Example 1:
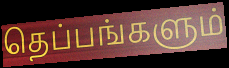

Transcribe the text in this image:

தெப்பங்களும்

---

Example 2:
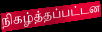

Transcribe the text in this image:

நிகழ்த்தப்பட்டன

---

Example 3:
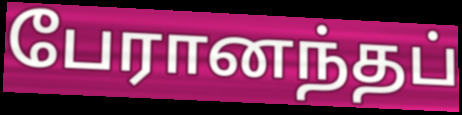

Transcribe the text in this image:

பேரானந்தப்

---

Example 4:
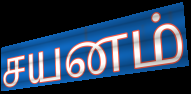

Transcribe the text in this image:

சயனம்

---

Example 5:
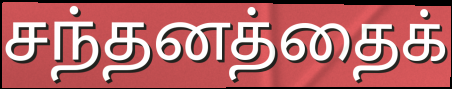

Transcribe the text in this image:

சந்தனத்தைக்